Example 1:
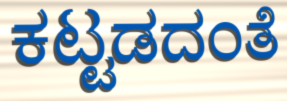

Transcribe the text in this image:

ಕಟ್ಟಡದಂತೆ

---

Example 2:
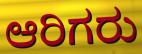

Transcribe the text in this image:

ಆರಿಗರು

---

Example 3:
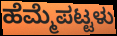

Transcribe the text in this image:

ಹೆಮ್ಮೆಪಟ್ಟಳು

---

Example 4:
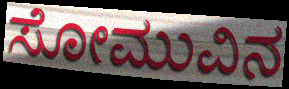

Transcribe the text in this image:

ಸೋಮುವಿನ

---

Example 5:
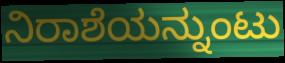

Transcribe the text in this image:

ನಿರಾಶೆಯನ್ನುಂಟು